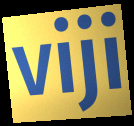
viji